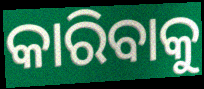
କାରିବାକୁ